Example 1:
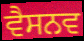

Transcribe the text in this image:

ਵੈਸਨਵ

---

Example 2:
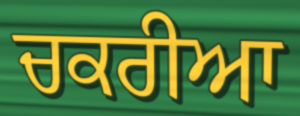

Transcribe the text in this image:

ਚਕਰੀਆ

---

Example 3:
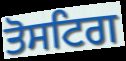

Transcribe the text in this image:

ਤੋਸਟਿਗ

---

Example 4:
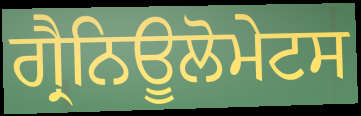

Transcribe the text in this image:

ਗ੍ਰੈਨਿਊਲੋਮੇਟਸ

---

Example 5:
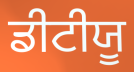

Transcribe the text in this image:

ਡੀਟੀਯੂ